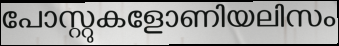
പോസ്റ്റുകളോണിയലിസം